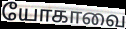
யோகாவை